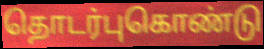
தொடர்புகொண்டு